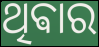
ଥିଵାର